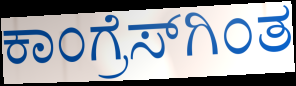
ಕಾಂಗ್ರೆಸ್‌ಗಿಂತ